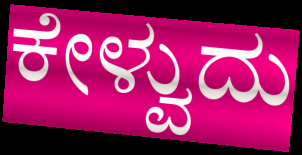
ಕೇಳ್ವುದು